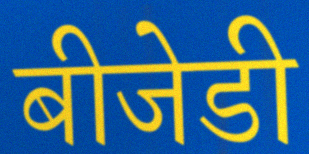
बीजेडी